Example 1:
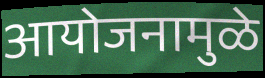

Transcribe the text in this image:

आयोजनामुळे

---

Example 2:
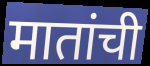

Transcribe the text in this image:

मातांची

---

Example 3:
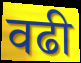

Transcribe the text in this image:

वढी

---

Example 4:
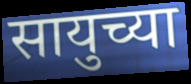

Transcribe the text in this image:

सायुच्या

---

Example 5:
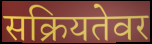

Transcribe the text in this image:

सक्रियतेवर